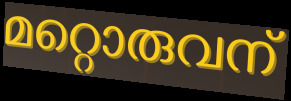
മറ്റൊരുവന്